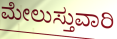
ಮೇಲುಸ್ತುವಾರಿ